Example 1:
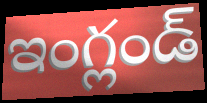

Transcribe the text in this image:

ఇంగ్లండ్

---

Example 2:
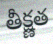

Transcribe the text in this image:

తీక్ష్ణత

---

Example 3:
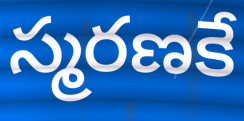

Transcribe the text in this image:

స్మరణకే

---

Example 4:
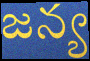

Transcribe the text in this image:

జన్య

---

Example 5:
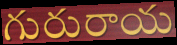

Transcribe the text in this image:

గురురాయ